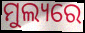
ମୁଲ୍ୟରେ